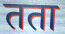
तता